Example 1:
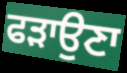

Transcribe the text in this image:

ਫੜਾਉਣਾ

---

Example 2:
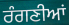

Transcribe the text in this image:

ਰੰਗਣੀਆਂ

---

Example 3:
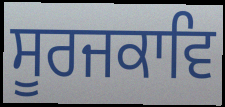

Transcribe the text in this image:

ਸੂਰਜਕਾਵਿ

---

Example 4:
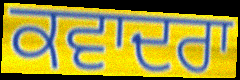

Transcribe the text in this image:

ਕਵਾਦਰਾ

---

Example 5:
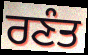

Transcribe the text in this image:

ਰਣੰਤ